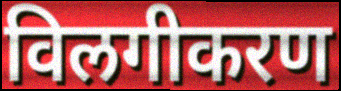
विलगीकरण